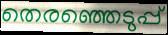
തെരഞ്ഞെടുപ്പ്